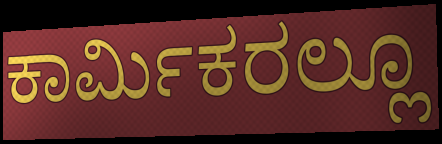
ಕಾರ್ಮಿಕರಲ್ಲೂ